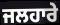
ਜਲਹਾਰੇ